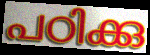
പഠിക്കു